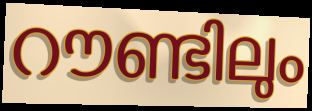
റൗണ്ടിലും